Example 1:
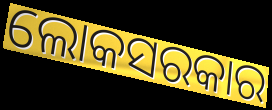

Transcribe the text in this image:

ଲୋକସରକାର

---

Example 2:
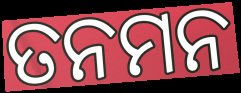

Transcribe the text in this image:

ତନମନ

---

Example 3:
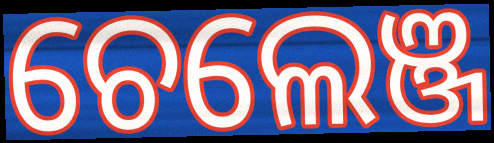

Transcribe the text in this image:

ଚେଲେଞ୍ଜ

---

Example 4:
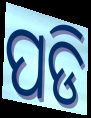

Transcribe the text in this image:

ପଡି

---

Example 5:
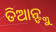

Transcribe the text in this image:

ତିଆନ୍ଙ୍କୁ